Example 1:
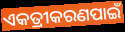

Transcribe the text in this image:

ଏକତ୍ରୀକରଣପାଇଁ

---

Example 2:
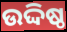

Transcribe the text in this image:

ଉଦ୍ଦିଷ୍ଠ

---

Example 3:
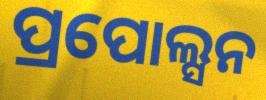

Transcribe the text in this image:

ପ୍ରପୋଲ୍ସନ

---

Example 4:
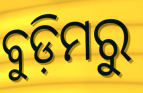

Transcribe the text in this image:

ବୁଡ଼ିମରୁ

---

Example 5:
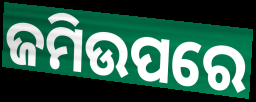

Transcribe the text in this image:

ଜମିଉପରେ